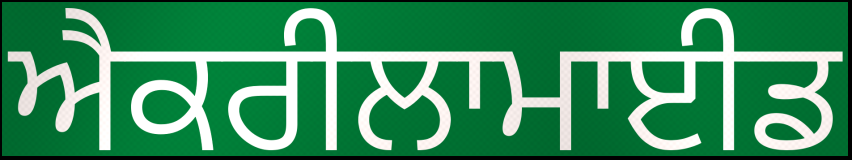
ਐਕਰੀਲਾਮਾਈਡ